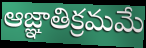
ఆజ్ఞాతిక్రమమే